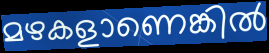
മഴകളാണെങ്കിൽ